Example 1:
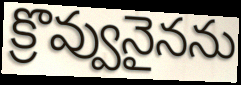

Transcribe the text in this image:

క్రొవ్వునైనను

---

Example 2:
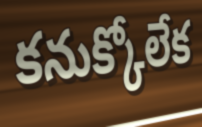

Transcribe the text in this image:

కనుక్కోలేక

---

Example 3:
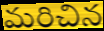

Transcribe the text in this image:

మరిచిన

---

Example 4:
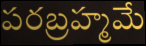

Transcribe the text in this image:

పరబ్రహ్మమే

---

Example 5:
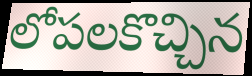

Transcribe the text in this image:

లోపలకొచ్చిన